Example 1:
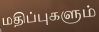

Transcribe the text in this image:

மதிப்புகளும்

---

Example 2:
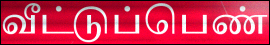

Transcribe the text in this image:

வீட்டுப்பெண்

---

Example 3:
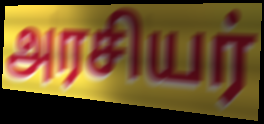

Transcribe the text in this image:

அரசியர்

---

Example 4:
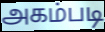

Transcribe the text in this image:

அகம்படி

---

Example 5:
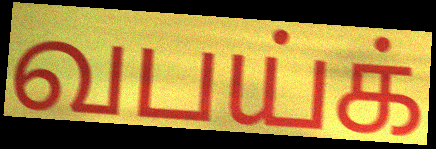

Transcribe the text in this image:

வபய்க்